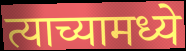
त्याच्यामध्ये